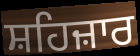
ਸ਼ਹਿਜ਼ਾਰ